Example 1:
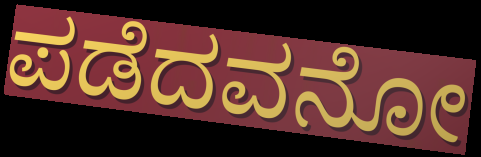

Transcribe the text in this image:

ಪಡೆದವನೋ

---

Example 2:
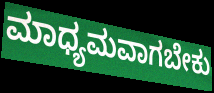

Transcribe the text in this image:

ಮಾಧ್ಯಮವಾಗಬೇಕು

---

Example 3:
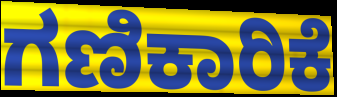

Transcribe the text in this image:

ಗಣಿಕಾರಿಕೆ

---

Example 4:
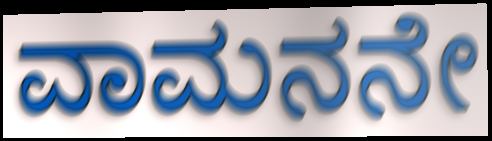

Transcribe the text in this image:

ವಾಮನನೇ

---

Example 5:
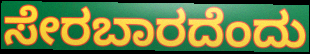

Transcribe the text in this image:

ಸೇರಬಾರದೆಂದು